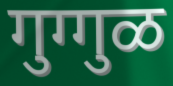
गुग्गुळ